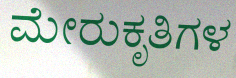
ಮೇರುಕೃತಿಗಳ